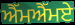
ਐੱਮਐੱਮਏ